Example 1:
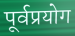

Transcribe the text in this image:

पूर्वप्रयोग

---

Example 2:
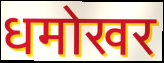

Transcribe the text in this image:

धमोखर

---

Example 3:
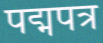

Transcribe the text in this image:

पद्मपत्र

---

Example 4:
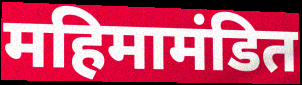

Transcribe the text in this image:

महिमामंडित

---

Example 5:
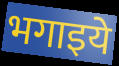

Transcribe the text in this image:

भगाइये